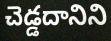
చెడ్డదానిని